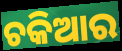
ଚକିଆର